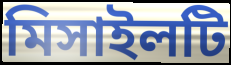
মিসাইলটি